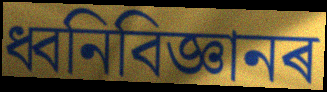
ধ্বনিবিজ্ঞানৰ